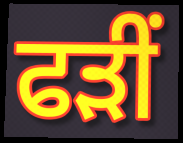
ਫੜੀਂ